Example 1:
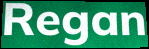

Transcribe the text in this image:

Regan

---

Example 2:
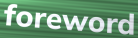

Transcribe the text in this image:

foreword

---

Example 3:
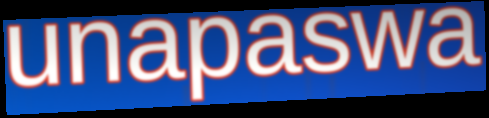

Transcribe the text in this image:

unapaswa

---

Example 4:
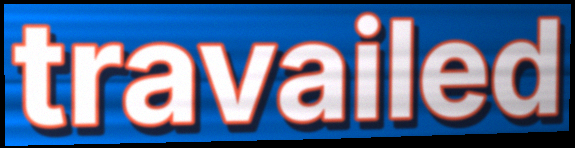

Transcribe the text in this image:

travailed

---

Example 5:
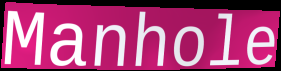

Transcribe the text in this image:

Manhole